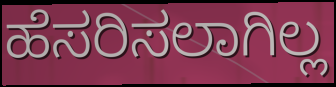
ಹೆಸರಿಸಲಾಗಿಲ್ಲ